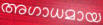
അഗാധമായ